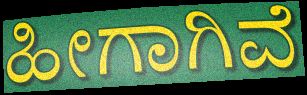
ಹೀಗಾಗಿವೆ